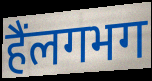
हैंलगभग